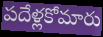
పదేళ్లకోమారు